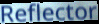
Reflector